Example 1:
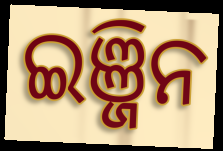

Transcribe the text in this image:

ଇଞ୍ଜିନ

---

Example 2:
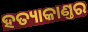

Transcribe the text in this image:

ହତ୍ୟାକାଣ୍ତର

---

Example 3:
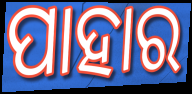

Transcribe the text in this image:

ପାହାର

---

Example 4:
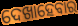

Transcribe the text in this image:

ଦେଖାହେବାର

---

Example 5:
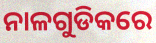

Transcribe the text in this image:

ନାଳଗୁଡିକରେ